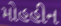
મોહહીન